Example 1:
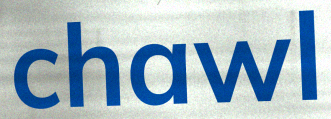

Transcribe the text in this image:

chawl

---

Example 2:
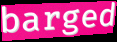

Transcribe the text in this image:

barged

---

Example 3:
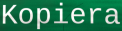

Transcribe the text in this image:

Kopiera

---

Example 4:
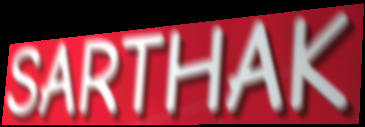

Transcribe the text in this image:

SARTHAK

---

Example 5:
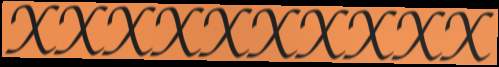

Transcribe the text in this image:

XXXXXXXXXX